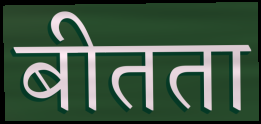
बीतता